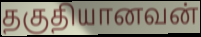
தகுதியானவன்